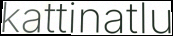
kattinatlu